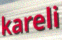
kareli